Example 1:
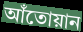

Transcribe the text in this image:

আঁতোয়ান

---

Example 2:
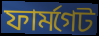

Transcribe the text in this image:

ফার্মগেট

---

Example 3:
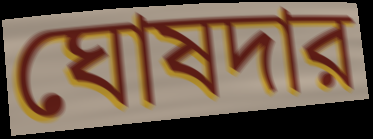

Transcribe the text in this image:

ঘোষদার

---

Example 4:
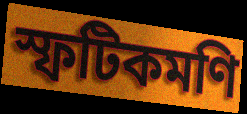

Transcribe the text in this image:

স্ফটিকমণি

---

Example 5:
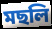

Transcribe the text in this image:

মছলি